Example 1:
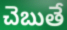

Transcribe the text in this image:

చెబుతే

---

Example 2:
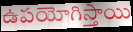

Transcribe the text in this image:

ఉపయోగిస్తాయి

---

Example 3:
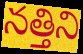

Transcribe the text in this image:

నత్తిని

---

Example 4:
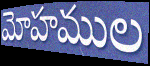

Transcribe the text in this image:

మోహముల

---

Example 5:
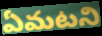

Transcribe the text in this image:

ఏమటని